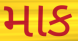
માક